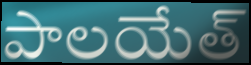
పాలయేత్